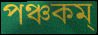
পঞ্চকম্